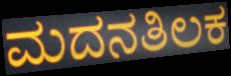
ಮದನತಿಲಕ